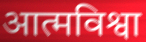
आत्मविश्वा